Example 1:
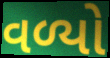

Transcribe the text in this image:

વળ્યો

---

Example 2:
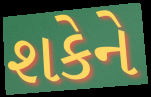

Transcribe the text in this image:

શકેને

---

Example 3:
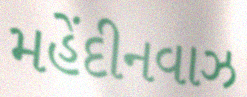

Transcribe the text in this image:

મહેંદીનવાઝ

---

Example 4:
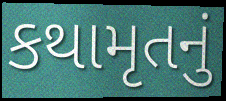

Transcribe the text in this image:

કથામૃતનું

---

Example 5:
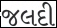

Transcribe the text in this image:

જલદી